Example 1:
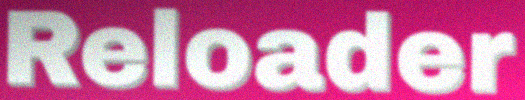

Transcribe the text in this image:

Reloader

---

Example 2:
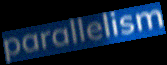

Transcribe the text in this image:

parallelism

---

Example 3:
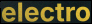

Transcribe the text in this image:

electro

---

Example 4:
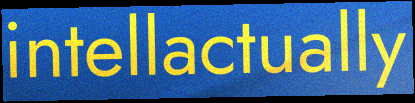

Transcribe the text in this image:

intellactually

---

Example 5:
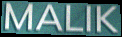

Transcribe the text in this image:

MALIK